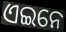
ଏଇନେ